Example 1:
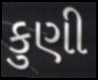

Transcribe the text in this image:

કુણી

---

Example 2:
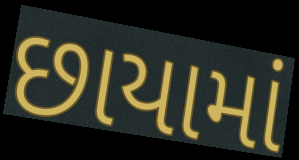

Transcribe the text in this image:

છાયામાં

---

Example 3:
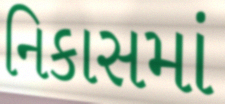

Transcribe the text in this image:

નિકાસમાં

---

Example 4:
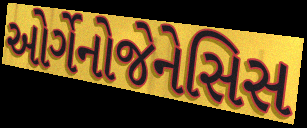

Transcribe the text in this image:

ઓર્ગેનોજેનેસિસ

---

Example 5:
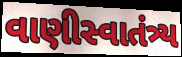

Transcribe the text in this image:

વાણીસ્વાતંત્ર્ય